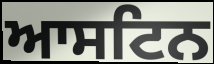
ਆਸਟਿਨ